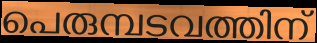
പെരുമ്പടവത്തിന്